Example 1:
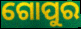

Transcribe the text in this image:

ଗୋପୁର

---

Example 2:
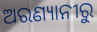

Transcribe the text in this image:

ଅରଣ୍ୟାନୀରୁ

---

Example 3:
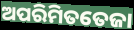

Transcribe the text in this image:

ଅପରିମିତତେଜା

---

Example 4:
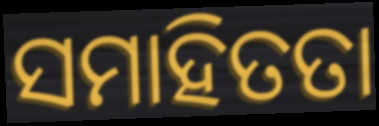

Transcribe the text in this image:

ସମାହିତତା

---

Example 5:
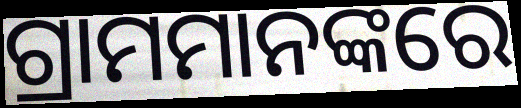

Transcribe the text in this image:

ଗ୍ରାମମାନଙ୍କରେ